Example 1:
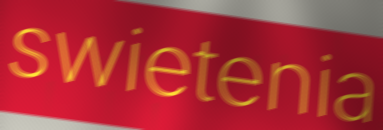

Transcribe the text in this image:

swietenia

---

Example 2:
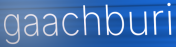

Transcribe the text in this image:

gaachburi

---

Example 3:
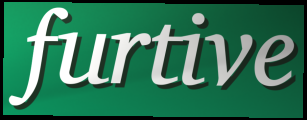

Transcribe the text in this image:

furtive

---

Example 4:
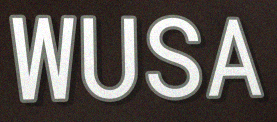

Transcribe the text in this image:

WUSA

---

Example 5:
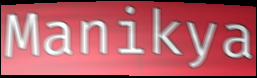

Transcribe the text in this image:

Manikya